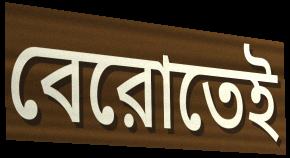
বেরোতেই